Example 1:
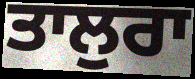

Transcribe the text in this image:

ਤਾਲੁਰਾ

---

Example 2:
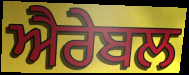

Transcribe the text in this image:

ਐਰੇਬਲ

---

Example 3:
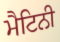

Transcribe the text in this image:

ਮੈਟਿਨੀ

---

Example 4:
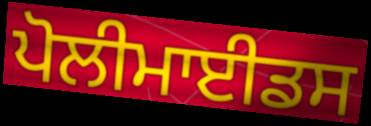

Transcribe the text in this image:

ਪੋਲੀਮਾਈਡਸ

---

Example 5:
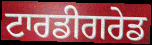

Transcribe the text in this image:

ਟਾਰਡੀਗਰੇਡ